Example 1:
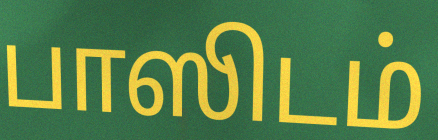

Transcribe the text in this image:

பாஸிடம்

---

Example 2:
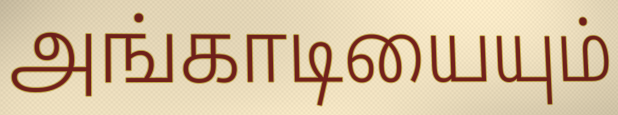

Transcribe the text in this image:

அங்காடியையும்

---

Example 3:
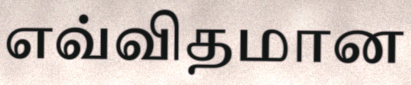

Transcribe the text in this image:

எவ்விதமான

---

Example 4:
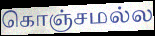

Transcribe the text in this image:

கொஞ்சமல்ல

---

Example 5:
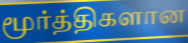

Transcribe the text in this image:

மூர்த்திகளான